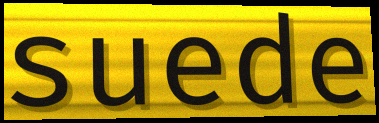
suede